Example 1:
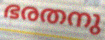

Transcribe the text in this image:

ഭരതനു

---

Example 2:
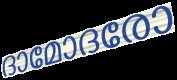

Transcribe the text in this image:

ദാമോദരോ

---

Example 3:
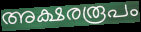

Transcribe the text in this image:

അക്ഷരരൂപം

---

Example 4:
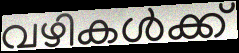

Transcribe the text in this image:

വഴികൾക്ക്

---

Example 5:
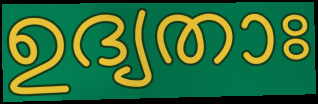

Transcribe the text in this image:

ഉദ്യതാഃ